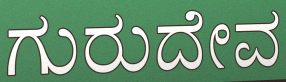
ಗುರುದೇವ